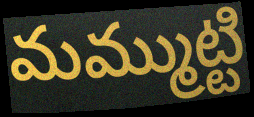
మమ్ముట్టి